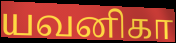
யவனிகா